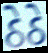
ઠેઠે